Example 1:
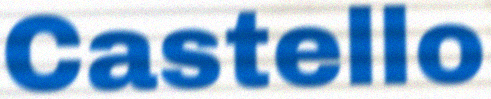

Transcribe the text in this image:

Castello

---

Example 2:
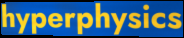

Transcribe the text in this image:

hyperphysics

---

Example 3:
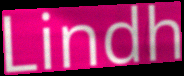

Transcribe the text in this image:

Lindh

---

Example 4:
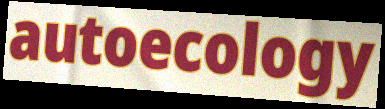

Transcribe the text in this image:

autoecology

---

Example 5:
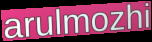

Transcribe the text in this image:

arulmozhi